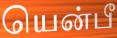
யென்பீ